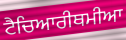
ਟੈਚਿਆਰੀਥਮੀਆ